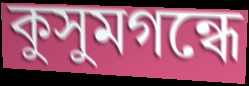
কুসুমগন্ধে